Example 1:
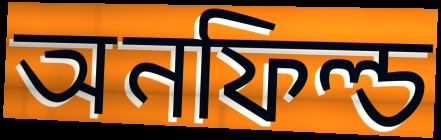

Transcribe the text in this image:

অনফিল্ড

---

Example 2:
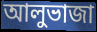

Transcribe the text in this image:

আলুভাজা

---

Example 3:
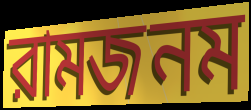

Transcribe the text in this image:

রামজনম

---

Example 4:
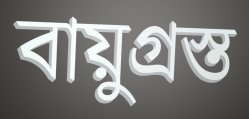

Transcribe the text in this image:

বায়ুগ্রস্ত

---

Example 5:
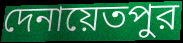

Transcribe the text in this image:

দেনায়েতপুর